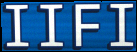
IIFI